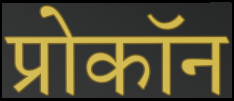
प्रोकॉन